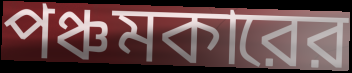
পঞ্চমকারের